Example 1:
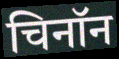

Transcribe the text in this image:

चिनॉन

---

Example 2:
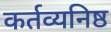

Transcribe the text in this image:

कर्तव्यनिष्ठ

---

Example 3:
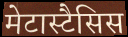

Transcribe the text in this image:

मेटास्टैसिस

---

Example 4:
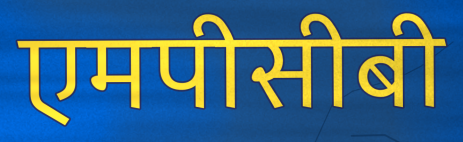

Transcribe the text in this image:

एमपीसीबी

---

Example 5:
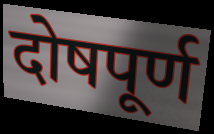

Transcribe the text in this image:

दोषपूर्ण